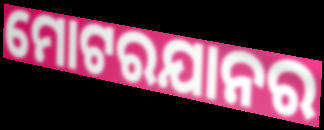
ମୋଟରଯାନର